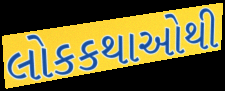
લોકકથાઓથી